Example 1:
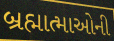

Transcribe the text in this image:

બ્રહ્માત્માઓની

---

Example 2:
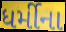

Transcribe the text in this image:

ધર્મીના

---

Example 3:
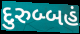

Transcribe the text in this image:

દુરુબ્બહં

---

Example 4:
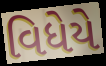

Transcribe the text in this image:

વિધેયે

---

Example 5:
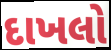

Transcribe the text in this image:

દાખલો